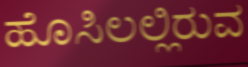
ಹೊಸಿಲಲ್ಲಿರುವ